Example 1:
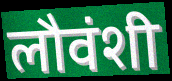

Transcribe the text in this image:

लौवंशी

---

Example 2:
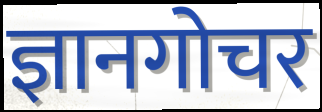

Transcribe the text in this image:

ज्ञानगोचर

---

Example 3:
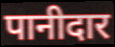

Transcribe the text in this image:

पानीदार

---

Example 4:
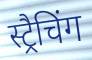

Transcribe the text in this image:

स्ट्रैचिंग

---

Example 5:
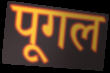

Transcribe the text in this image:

पूगल